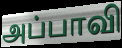
அப்பாவி